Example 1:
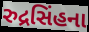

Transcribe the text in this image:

રુદ્રસિંહના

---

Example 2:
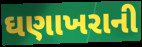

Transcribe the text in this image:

ઘણાખરાની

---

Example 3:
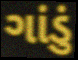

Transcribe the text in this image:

ગાંડું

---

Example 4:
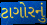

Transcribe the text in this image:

ટાગોરનું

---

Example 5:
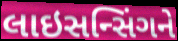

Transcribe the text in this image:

લાઇસન્સિંગને